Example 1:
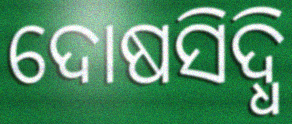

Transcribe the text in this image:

ଦୋଷସିଦ୍ଧି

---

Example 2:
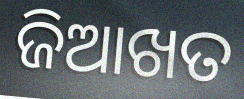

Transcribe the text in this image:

ଜିଆଖତ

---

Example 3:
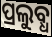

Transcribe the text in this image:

ପ୍ରଲୁବ୍ଧ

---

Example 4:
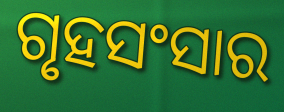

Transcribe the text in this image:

ଗୃହସଂସାର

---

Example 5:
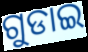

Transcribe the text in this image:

ଗୁଡାଇ